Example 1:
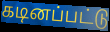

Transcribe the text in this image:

கடினப்பட்டு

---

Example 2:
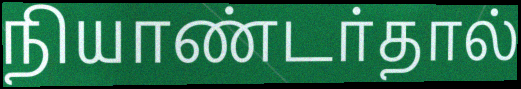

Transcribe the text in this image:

நியாண்டர்தால்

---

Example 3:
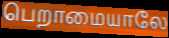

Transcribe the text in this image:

பெறாமையாலே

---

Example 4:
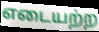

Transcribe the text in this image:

எடையற்ற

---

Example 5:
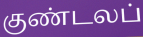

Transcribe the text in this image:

குண்டலப்